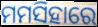
ମମସିହାରେ